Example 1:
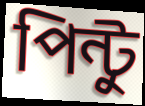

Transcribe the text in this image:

পিন্টু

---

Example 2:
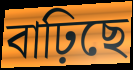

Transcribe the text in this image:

বাঢ়িছে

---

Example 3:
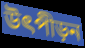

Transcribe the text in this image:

উৎপীড়ন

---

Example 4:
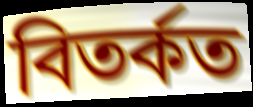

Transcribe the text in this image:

বিতৰ্কত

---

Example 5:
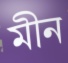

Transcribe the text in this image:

মীন